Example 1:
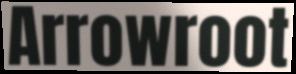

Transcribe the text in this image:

Arrowroot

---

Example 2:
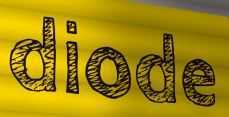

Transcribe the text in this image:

diode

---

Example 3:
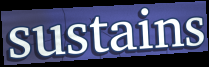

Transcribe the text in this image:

sustains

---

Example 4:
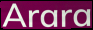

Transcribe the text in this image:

Arara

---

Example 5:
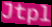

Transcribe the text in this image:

Jtpl